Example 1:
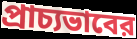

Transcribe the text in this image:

প্রাচ্যভাবের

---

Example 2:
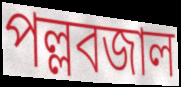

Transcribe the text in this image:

পল্লবজাল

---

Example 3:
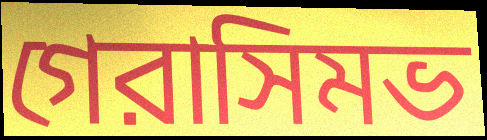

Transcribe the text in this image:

গেরাসিমভ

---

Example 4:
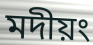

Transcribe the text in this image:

মদীয়ং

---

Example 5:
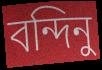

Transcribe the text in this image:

বন্দিনু